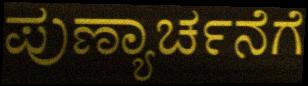
ಪುಣ್ಯಾರ್ಚನೆಗೆ